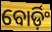
ବୋର୍ଡ଼ିଂ